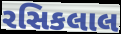
રસિકલાલ